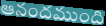
ఆనందముంది